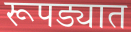
रूपड्यात